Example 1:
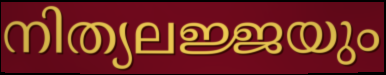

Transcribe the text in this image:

നിത്യലജ്ജയും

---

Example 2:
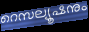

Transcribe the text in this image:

റെസല്യൂഷനും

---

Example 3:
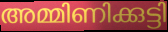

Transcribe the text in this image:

അമ്മിണിക്കുട്ടി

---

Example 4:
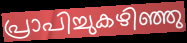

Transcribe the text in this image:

പ്രാപിച്ചുകഴിഞ്ഞു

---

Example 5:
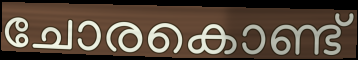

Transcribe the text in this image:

ചോരകൊണ്ട്